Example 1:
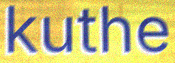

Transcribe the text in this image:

kuthe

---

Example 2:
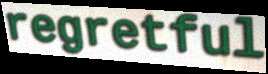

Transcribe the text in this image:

regretful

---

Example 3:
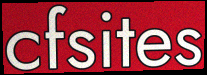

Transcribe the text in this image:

cfsites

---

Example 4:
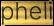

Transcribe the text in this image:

pheli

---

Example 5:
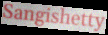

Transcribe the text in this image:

Sangishetty